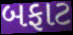
બફાટ